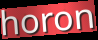
horon